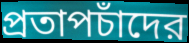
প্রতাপচাঁদের